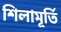
শিলামূর্তি